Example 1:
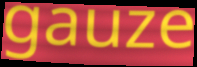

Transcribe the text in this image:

gauze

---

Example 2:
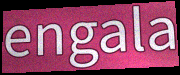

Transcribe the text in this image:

engala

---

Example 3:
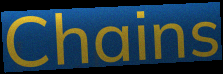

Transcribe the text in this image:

Chains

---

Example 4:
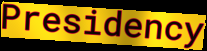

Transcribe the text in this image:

Presidency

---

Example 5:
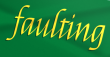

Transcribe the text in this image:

faulting